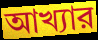
আখ্যার